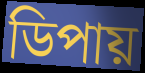
ডিপায়